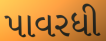
પાવરધી